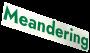
Meandering